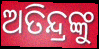
ଅତିନ୍ଦ୍ରଙ୍କୁ